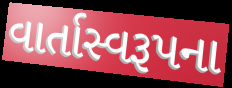
વાર્તાસ્વરૂપના